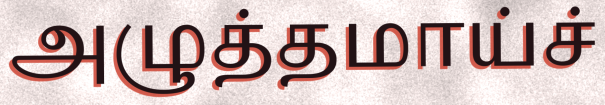
அழுத்தமாய்ச்